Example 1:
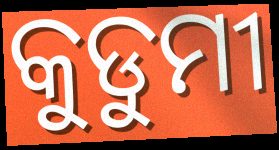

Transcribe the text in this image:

କୁଡୁମୀ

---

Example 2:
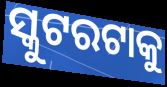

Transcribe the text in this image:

ସ୍କୁଟରଟାକୁ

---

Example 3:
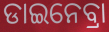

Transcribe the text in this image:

ଡାଇନେବ୍ରା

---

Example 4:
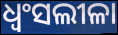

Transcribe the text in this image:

ଧ୍ବଂସଲୀଳା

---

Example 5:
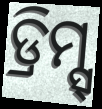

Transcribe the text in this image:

ଡ୍ରିମ୍ସ୍